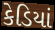
કેડિયાં